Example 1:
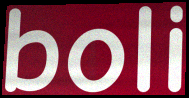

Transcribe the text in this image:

boli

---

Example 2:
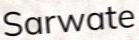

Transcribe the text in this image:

Sarwate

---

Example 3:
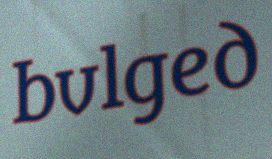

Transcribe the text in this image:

bulged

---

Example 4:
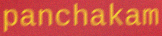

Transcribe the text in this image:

panchakam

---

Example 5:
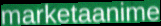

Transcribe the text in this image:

marketaanime